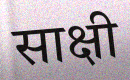
साक्षी